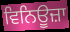
ਵਿਨਿਊਜ਼ਾ